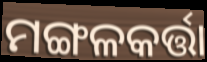
ମଙ୍ଗଳକର୍ତ୍ତା